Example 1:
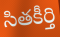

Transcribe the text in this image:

సితకీర్తి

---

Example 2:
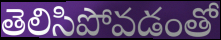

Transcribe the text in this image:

తెలిసిపోవడంతో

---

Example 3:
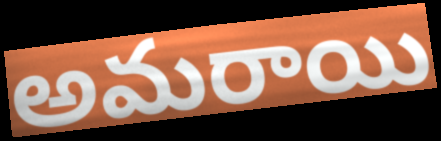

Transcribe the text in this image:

అమరాయి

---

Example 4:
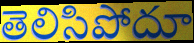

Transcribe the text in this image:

తెలిసిపోదూ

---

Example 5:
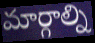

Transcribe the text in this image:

మార్గాల్ని